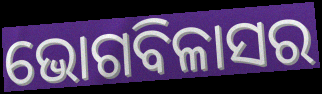
ଭୋଗବିଳାସର